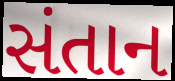
સંતાન